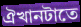
ঐখানটাতে